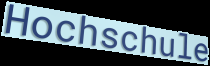
Hochschule